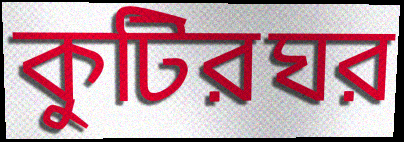
কুটিরঘর